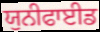
ਯੁਨੀਫਾਈਡ